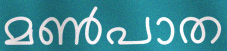
മൺപാത